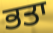
ਭਤਾ